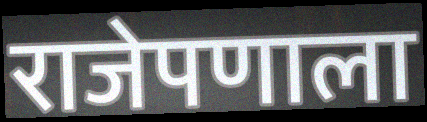
राजेपणाला